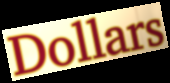
Dollars